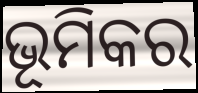
ଭୂମିକର